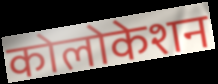
कोलोकेशन